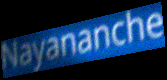
Nayananche